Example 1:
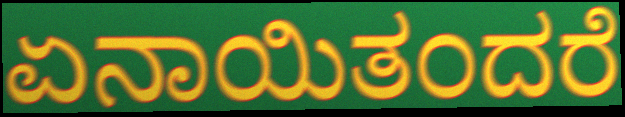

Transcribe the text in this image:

ಏನಾಯಿತಂದರೆ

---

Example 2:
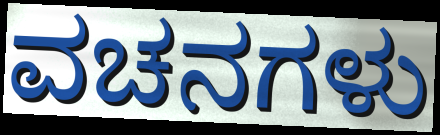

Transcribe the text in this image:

ವಚನಗಳು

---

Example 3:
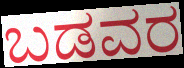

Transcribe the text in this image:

ಬಡವರ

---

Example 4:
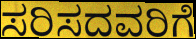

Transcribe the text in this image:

ಸರಿಸದವರಿಗೆ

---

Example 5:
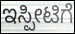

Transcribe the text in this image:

ಇಸ್ಪೀಟಿಗೆ